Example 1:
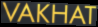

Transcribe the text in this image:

VAKHAT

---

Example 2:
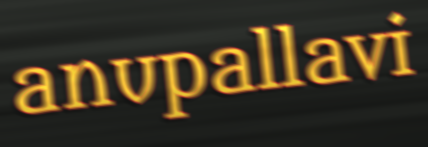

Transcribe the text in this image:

anupallavi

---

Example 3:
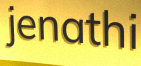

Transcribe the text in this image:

jenathi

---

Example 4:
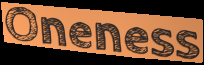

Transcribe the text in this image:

Oneness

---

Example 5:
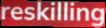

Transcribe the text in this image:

reskilling